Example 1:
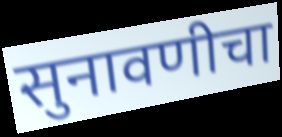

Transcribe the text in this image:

सुनावणीचा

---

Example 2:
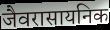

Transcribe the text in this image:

जैवरासायनिक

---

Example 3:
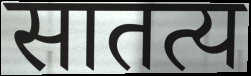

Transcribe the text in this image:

सातत्य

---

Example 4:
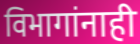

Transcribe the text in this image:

विभागांनाही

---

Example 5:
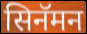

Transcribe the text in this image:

सिनॅमन